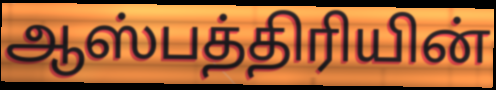
ஆஸ்பத்திரியின்